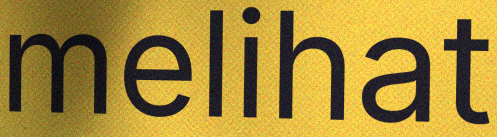
melihat